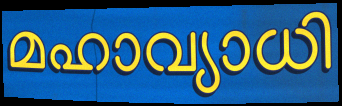
മഹാവ്യാധി